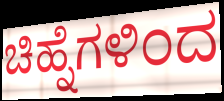
ಚಿಹ್ನೆಗಳಿಂದ